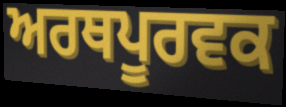
ਅਰਥਪੂਰਵਕ